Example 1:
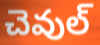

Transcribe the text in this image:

చెవుల్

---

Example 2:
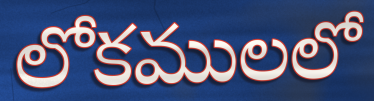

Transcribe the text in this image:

లోకములలో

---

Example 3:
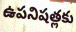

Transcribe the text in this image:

ఉపనిషత్లకు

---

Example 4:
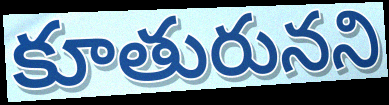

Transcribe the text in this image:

కూతురునని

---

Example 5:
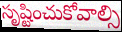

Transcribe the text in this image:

సృష్టించుకోవాల్సి